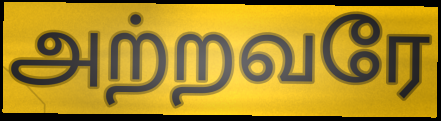
அற்றவரே